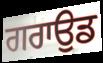
ਗਰਾਉਡ